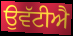
ਉਵੱਟੀਐ